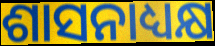
ଶାସନାଧ୍ୟକ୍ଷ